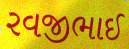
રવજીભાઈ